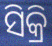
ସିକ୍ରି